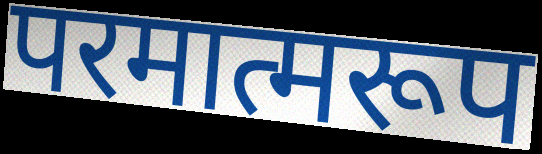
परमात्मरूप